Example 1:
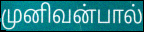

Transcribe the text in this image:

முனிவன்பால்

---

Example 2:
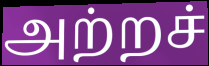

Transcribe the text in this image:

அற்றச்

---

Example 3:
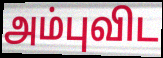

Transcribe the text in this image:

அம்புவிட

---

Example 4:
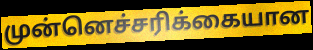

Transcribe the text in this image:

முன்னெச்சரிக்கையான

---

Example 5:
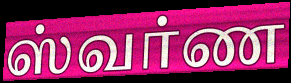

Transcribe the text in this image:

ஸ்வர்ண